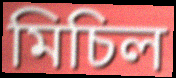
মিচিল